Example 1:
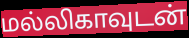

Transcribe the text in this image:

மல்லிகாவுடன்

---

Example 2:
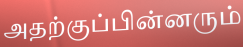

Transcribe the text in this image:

அதற்குப்பின்னரும்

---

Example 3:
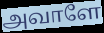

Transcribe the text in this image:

அவாளே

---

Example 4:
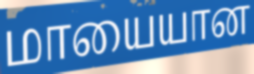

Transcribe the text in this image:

மாயையான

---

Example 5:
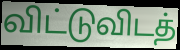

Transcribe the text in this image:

விட்டுவிடத்